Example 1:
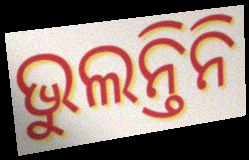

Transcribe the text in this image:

ଭୁଲନ୍ତିନି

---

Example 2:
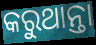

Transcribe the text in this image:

କରୁଥାନ୍ତା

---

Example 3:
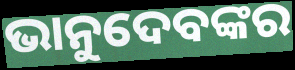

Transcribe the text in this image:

ଭାନୁଦେବଙ୍କର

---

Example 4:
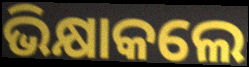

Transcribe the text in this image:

ଭିକ୍ଷାକଲେ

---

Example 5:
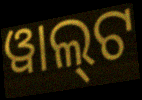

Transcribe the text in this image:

ୱାଲ୍‌ଟ